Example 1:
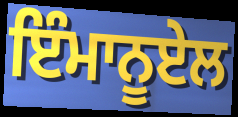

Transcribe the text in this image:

ਇੰਮਾਨੂਏਲ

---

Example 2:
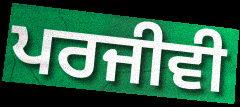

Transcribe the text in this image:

ਪਰਜੀਵੀ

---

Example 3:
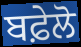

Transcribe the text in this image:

ਬਫ਼ੇਲੋ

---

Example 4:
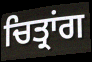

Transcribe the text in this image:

ਚਿਤ੍ਰਾਂਗ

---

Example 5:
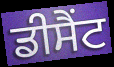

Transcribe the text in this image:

ਡੀਸੈਂਟ